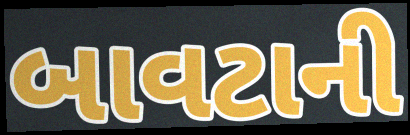
બાવટાની